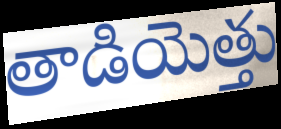
తాడియెత్తు